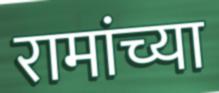
रामांच्या